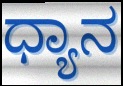
ಧ್ಯಾನ